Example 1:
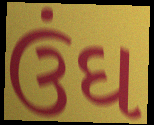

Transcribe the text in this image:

ઉંઘ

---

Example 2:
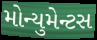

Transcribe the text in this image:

મોન્યુમેન્ટસ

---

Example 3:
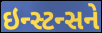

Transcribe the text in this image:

ઇન્સ્ટન્સને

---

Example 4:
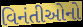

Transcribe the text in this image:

વિનંતીઓનો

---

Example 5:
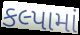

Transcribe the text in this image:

કલ્પામાં